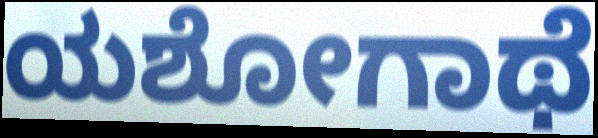
ಯಶೋಗಾಥೆ